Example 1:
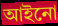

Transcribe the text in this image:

আইনো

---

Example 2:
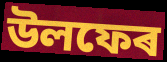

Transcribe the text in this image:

উলফেৰ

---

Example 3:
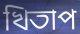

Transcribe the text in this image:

খিতাপ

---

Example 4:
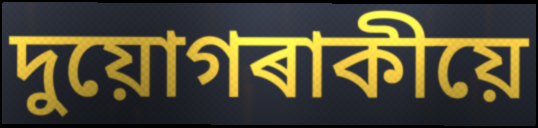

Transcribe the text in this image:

দুয়োগৰাকীয়ে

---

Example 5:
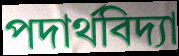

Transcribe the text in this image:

পদাৰ্থবিদ্যা